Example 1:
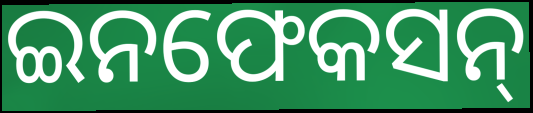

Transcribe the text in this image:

ଇନଫେକସନ୍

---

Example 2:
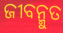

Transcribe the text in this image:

ଜୀବନ୍ମୁତ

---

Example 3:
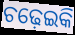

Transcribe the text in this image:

ଚଢ଼େଇକି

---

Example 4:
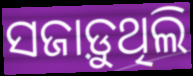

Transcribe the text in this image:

ସଜାଡ଼ୁଥିଲି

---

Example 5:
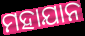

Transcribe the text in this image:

ମହାଯାନ